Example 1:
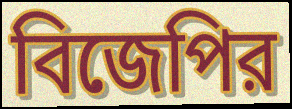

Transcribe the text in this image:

বিজেপির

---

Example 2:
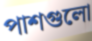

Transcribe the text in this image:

পাশগুলো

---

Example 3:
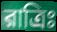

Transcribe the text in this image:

রাত্রিঃ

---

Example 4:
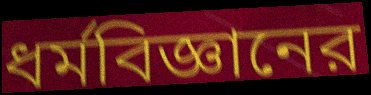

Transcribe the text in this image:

ধর্মবিজ্ঞানের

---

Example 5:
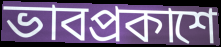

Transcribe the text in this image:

ভাবপ্রকাশে